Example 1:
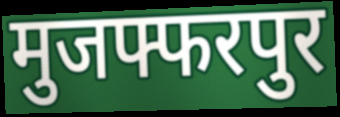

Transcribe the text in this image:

मुजफ्फरपुर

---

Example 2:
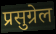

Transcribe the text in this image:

प्रसुग्रेल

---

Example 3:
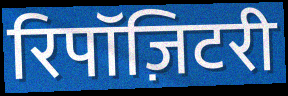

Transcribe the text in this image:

रिपॉज़िटरी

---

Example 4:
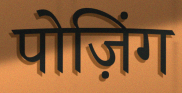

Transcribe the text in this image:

पोज़िंग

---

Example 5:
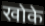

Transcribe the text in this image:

खोके